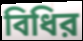
বিধির